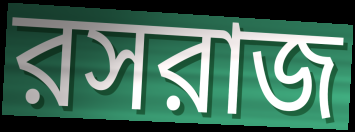
রসরাজ